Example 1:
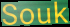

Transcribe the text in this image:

Souk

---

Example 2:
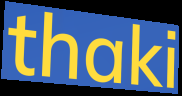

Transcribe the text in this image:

thaki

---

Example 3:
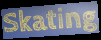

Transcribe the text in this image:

Skating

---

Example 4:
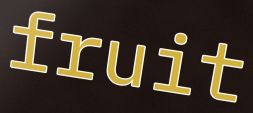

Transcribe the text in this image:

fruit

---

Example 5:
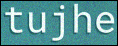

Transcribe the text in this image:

tujhe